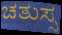
ಚತುಸ್ಸ